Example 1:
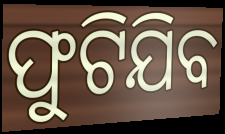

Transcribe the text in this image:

ଫୁଟିଯିବ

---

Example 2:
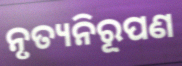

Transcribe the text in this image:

ନୃତ୍ୟନିରୂପଣ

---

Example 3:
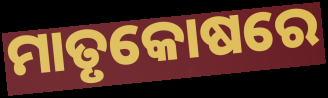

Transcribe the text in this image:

ମାତୃକୋଷରେ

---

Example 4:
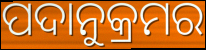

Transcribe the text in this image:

ପଦାନୁକ୍ରମର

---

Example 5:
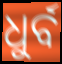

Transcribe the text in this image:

ଧୁର୍ବ